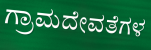
ಗ್ರಾಮದೇವತೆಗಳ